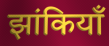
झांकियाँ